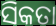
ସିକତା